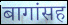
बागांसह